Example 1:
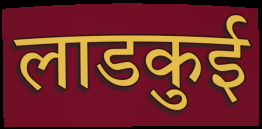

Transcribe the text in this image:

लाडकुई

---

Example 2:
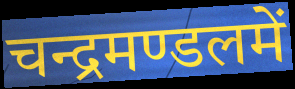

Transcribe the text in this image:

चन्द्रमण्डलमें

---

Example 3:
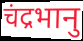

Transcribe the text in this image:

चंद्रभानु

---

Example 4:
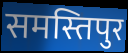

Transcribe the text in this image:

समस्तिपुर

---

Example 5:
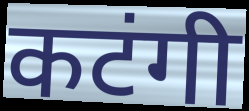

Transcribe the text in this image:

कटंगी